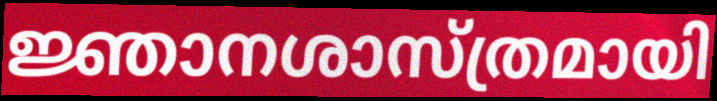
ജ്ഞാനശാസ്ത്രമായി